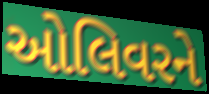
ઓલિવરને